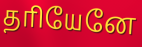
தரியேனே